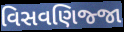
વિસવણિજ્જા